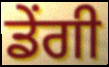
ਡੇਂਗੀ